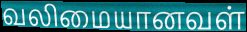
வலிமையானவள்